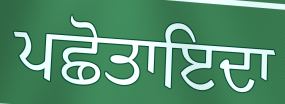
ਪਛੋਤਾਇਦਾ